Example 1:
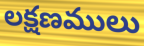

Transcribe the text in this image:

లక్షణములు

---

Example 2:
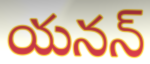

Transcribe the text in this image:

యనన్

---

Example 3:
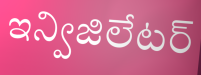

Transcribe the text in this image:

ఇన్విజిలేటర్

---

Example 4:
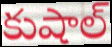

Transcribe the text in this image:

కుషాల్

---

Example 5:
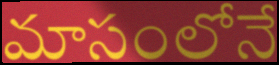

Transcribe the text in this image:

మాసంలోనే